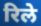
रिले